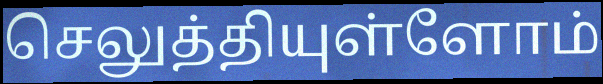
செலுத்தியுள்ளோம்